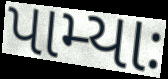
પામ્યાઃ